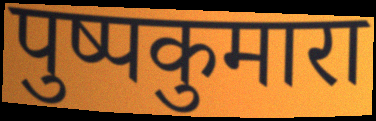
पुष्पकुमारा